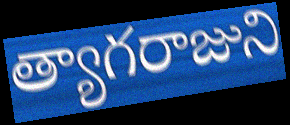
త్యాగరాజుని